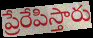
ప్రేరేపిస్తారు